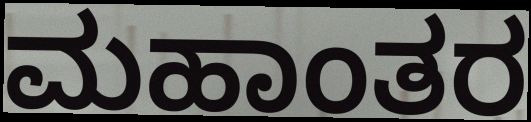
ಮಹಾಂತರ